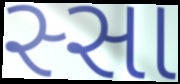
સ્સા